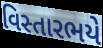
વિસ્તારભયે